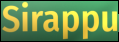
Sirappu